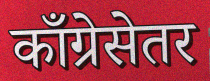
काँग्रेसेतर